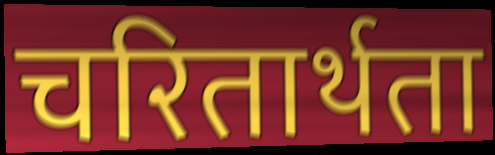
चरितार्थता